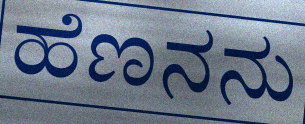
ಹೆಣನನು